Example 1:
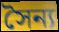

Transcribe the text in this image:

সৈন্য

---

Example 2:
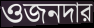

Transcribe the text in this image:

ওজনদার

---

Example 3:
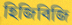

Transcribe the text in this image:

হিজিবিজি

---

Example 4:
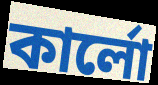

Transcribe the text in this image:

কার্লো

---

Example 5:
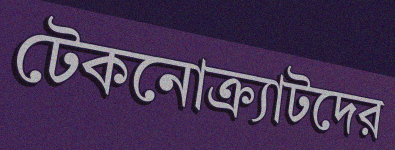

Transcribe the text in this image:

টেকনোক্র্যাটদের